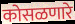
कोसळणारे